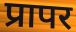
प्रापर